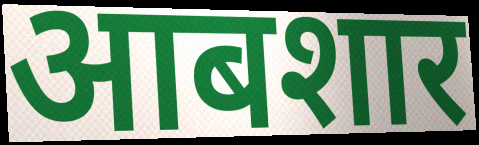
आबशार